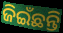
ଜିଇଁଛନ୍ତି